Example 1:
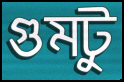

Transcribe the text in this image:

গুমটু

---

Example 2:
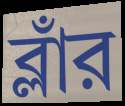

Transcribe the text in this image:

ব্লাঁর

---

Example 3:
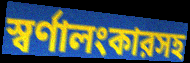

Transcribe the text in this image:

স্বর্ণালংকারসহ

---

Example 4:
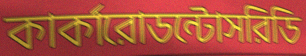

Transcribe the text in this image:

কার্কারোডন্টোসরিডি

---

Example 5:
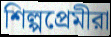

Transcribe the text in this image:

শিল্পপ্রেমীরা